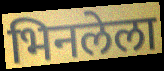
भिनलेला